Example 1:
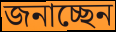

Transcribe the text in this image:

জনাচ্ছেন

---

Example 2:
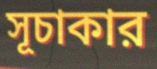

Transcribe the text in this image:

সূচাকার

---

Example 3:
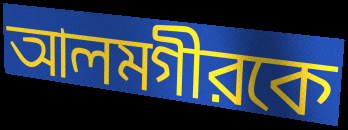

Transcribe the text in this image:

আলমগীরকে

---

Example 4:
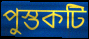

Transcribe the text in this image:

পুস্তকটি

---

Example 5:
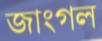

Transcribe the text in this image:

জাংগল